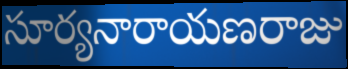
సూర్యనారాయణరాజు